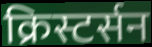
क्रिस्टर्सन